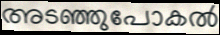
അടഞ്ഞുപോകൽ